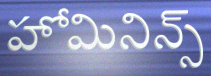
హోమినిన్స్